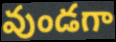
వుండగా